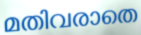
മതിവരാതെ